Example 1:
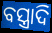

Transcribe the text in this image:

ବସ୍ତ୍ରାଦି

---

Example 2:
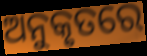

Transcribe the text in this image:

ଅନୁକୃତରେ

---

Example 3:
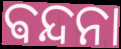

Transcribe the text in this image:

ଵନ୍ଦନା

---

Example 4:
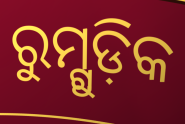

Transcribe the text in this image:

ରୁମ୍ଗୁଡ଼ିକ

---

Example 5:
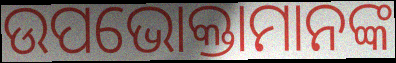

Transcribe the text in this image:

ଉପଭୋକ୍ତାମାନଙ୍କ